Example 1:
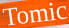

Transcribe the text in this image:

Tomic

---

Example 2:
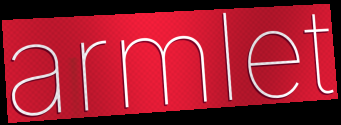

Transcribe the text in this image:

armlet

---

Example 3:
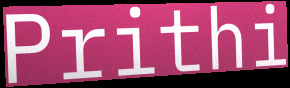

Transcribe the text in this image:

Prithi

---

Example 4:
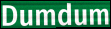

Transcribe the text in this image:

Dumdum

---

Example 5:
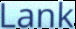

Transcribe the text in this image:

Lank